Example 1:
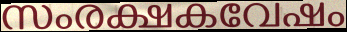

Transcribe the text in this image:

സംരക്ഷകവേഷം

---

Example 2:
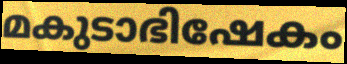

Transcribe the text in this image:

മകുടാഭിഷേകം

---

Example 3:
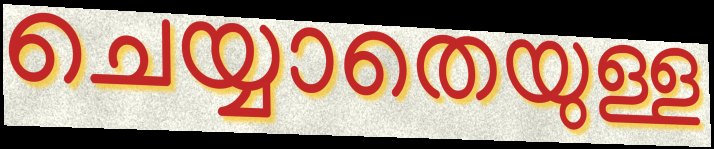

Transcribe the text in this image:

ചെയ്യാതെയുള്ള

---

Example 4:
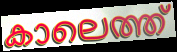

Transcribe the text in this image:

കാലെത്ത്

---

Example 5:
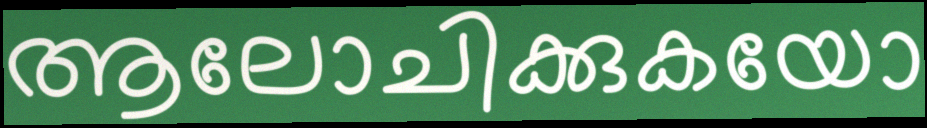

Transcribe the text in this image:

ആലോചിക്കുകയോ